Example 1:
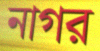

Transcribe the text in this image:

নাগর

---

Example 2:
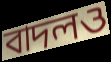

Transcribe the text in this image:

বাদলও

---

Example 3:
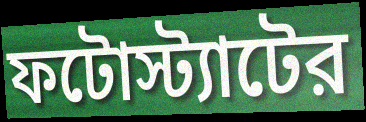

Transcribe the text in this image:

ফটোস্ট্যাটের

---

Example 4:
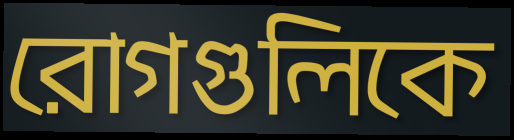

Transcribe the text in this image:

রোগগুলিকে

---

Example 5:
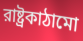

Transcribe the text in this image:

রাষ্ট্রকাঠামো